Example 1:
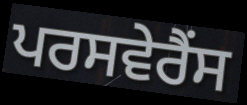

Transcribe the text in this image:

ਪਰਸਵੇਰੈਂਸ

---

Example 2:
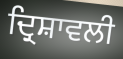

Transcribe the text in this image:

ਦ੍ਰਿਸ਼ਾਵਲੀ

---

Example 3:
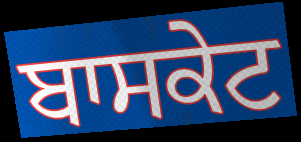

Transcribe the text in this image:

ਬਾਸਕੇਟ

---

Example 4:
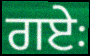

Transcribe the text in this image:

ਗਏਃ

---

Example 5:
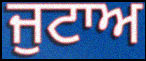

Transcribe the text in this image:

ਜੁਟਾਅ